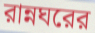
রান্নঘরের